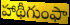
హాథీగుంఫా